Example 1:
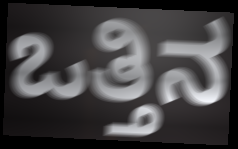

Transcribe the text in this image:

ಒತ್ತಿನ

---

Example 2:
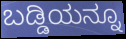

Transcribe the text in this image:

ಬಡ್ಡಿಯನ್ನೂ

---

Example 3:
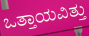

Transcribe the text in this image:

ಒತ್ತಾಯವಿತ್ತು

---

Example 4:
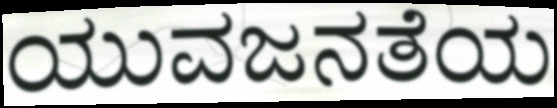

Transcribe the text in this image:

ಯುವಜನತೆಯ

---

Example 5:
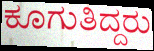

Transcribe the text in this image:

ಕೂಗುತಿದ್ದರು